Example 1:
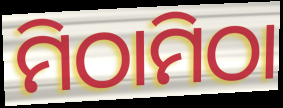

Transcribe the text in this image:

ମିଠାମିଠା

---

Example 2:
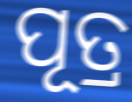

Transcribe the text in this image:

ପୂତ୍ର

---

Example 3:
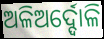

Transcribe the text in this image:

ଅଳିଅର୍ଦ୍ଦୋଳି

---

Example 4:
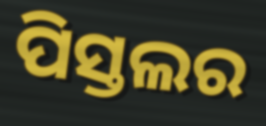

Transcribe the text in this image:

ପିସ୍ତଲର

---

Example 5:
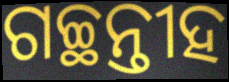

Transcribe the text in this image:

ଗଚ୍ଛନ୍ତୀହ